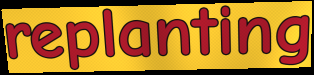
replanting